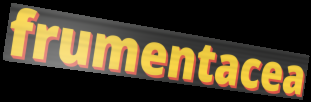
frumentacea